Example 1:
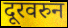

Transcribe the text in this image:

दूरवरुन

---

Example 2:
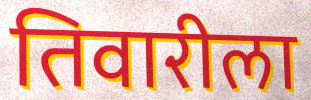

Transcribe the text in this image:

तिवारीला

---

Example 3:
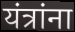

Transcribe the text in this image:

यंत्रांना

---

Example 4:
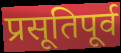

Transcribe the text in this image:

प्रसूतिपूर्व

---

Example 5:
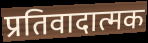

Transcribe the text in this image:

प्रतिवादात्मक